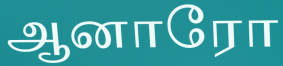
ஆனாரோ